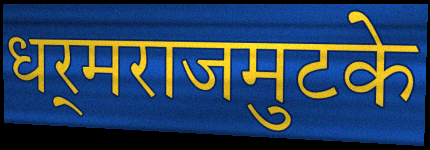
धर्मराजमुटके